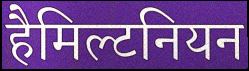
हैमिल्टनियन